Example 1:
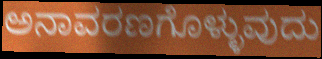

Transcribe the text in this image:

ಅನಾವರಣಗೊಳ್ಳುವುದು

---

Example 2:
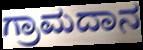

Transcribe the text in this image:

ಗ್ರಾಮದಾನ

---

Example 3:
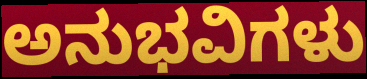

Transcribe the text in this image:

ಅನುಭವಿಗಳು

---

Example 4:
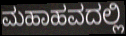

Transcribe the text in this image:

ಮಹಾಹವದಲ್ಲಿ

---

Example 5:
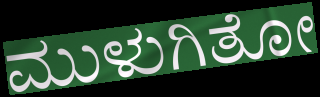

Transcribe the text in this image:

ಮುಳುಗಿತೋ